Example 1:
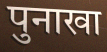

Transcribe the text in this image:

पुनाखा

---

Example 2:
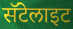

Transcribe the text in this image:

सॅटेलाइट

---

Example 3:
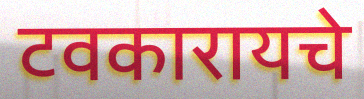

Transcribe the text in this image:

टवकारायचे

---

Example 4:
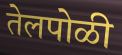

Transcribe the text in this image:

तेलपोळी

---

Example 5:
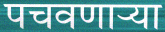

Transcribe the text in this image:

पचवणाऱ्या